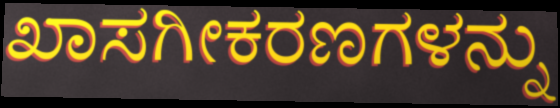
ಖಾಸಗೀಕರಣಗಳನ್ನು